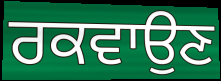
ਰਕਵਾਉਣ